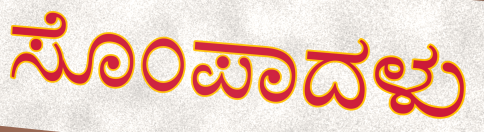
ಸೊಂಪಾದಳು